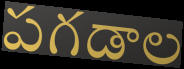
పగడాల